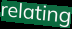
relating